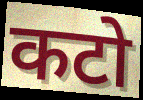
कटो